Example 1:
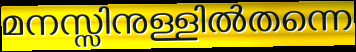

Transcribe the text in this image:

മനസ്സിനുള്ളിൽതന്നെ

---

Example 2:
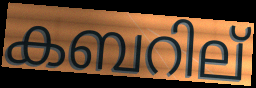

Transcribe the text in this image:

കബറില്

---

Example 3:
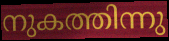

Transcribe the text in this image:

നുകത്തിന്നു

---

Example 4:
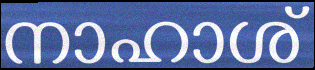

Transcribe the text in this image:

നാഹാശ്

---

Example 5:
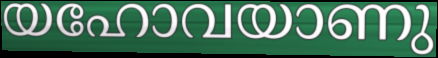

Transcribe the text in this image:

യഹോവയാണു